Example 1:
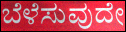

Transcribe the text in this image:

ಬೆಳೆಸುವುದೇ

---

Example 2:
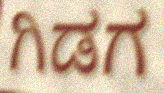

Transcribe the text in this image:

ಗಿಡಗ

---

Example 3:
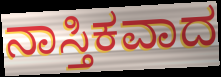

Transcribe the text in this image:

ನಾಸ್ತಿಕವಾದ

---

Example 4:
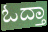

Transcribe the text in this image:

ಓದ್ತಾ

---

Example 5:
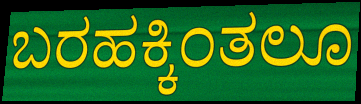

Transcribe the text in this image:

ಬರಹಕ್ಕಿಂತಲೂ